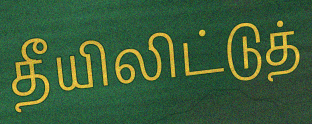
தீயிலிட்டுத்